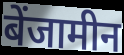
बेंजामीन